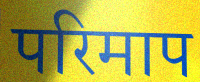
परिमाप